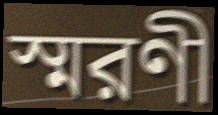
স্মরণী